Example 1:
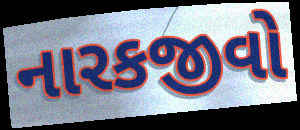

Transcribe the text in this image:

નારકજીવો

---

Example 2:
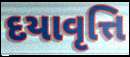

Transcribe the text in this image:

દયાવૃત્તિ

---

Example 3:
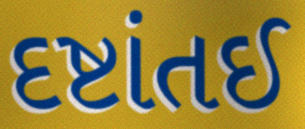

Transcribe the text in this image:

દષ્ટાંતઈ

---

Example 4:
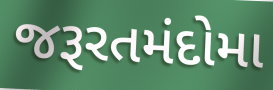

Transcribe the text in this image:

જરૂરતમંદોમા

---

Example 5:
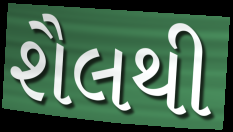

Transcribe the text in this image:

શૈલથી